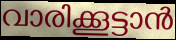
വാരിക്കൂട്ടാൻ